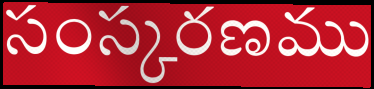
సంస్కరణము